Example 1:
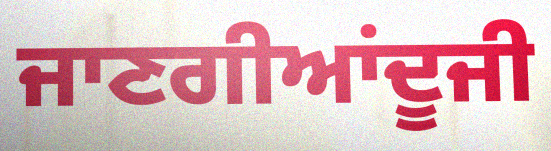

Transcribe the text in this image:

ਜਾਣਗੀਆਂਦੂਜੀ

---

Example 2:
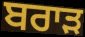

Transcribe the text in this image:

ਬਰਾਡ਼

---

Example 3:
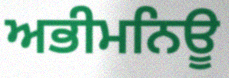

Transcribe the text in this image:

ਅਭੀਮਨਿਊ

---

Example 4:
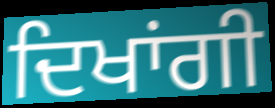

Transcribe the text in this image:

ਦਿਖਾਂਗੀ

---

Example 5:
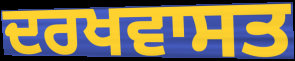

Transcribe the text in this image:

ਦਰਖਵਾਸਤ